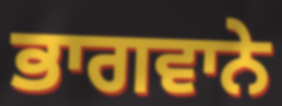
ਭਾਗਵਾਨੇ